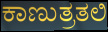
ಕಾಣುತ್ರತಲಿ